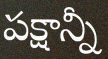
పక్షాన్నీ